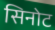
सिनोट